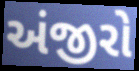
અંજીરો